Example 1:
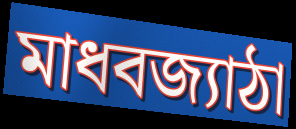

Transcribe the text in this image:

মাধবজ্যাঠা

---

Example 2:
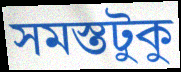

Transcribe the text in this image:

সমস্তটুকু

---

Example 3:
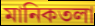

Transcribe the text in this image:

মানিকতলা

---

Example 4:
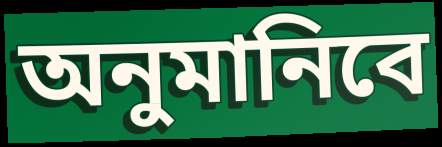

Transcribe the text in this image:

অনুমানিবে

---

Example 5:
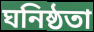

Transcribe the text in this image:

ঘনিষ্ঠতা